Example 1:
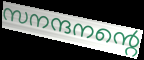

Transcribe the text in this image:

സനന്ദനന്റെ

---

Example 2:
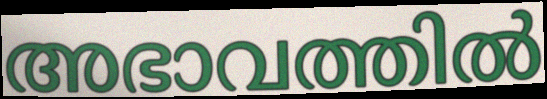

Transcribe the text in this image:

അഭാവത്തിൽ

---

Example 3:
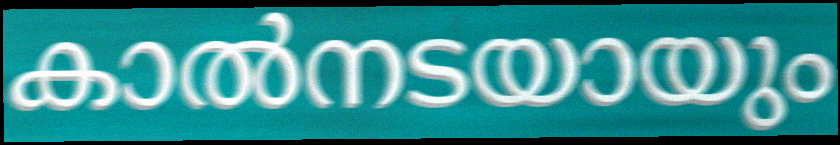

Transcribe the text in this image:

കാൽനടയായും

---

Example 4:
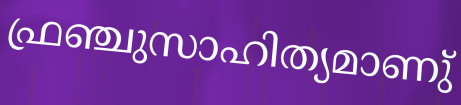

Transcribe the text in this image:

ഫ്രഞ്ചുസാഹിത്യമാണു്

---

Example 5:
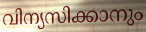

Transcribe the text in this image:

വിന്യസിക്കാനും